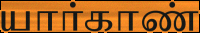
யார்காண்